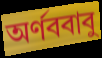
অর্ণববাবু